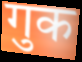
गुक